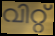
വിറ്റ്